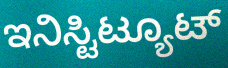
ಇನಿಸ್ಟಿಟ್ಯೂಟ್